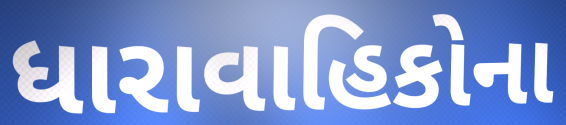
ધારાવાહિકોના